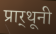
प्रार्थूनी